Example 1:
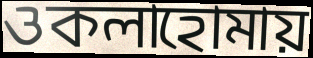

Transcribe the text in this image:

ওকলাহোমায়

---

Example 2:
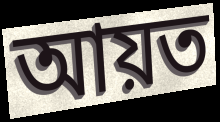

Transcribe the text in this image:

আয়ত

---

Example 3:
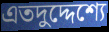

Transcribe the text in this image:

এতদুদ্দেশ্যে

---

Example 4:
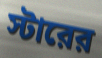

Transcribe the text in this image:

স্টারের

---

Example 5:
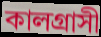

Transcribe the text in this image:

কালগ্রাসী